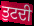
ਤੁਟਦੀ